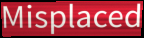
Misplaced